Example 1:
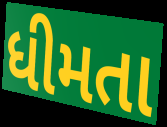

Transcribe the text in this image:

ધીમતા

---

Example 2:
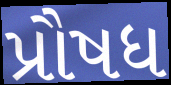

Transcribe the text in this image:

પ્રૌષધ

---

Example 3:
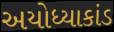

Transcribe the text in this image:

અયોધ્યાકાંડ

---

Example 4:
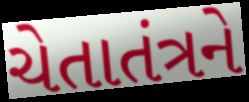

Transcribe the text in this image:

ચેતાતંત્રને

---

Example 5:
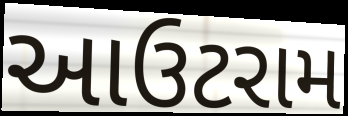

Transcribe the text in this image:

આઉટરામ